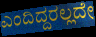
ಎಂದಿದ್ದರಲ್ಲದೇ